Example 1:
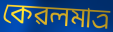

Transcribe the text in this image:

কেৱলমাত্ৰ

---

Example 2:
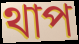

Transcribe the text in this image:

থাপ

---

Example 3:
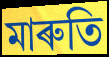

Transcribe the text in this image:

মাৰুতি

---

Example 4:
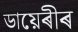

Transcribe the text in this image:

ডায়েৰীৰ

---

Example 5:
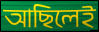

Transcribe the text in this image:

আছিলেই